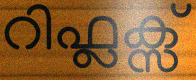
റിഫ്ലക്സ്